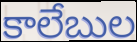
కాలేబుల